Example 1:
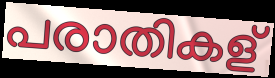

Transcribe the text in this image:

പരാതികള്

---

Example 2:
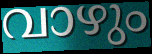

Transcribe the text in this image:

വാഴും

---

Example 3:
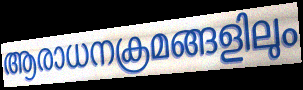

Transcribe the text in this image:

ആരാധനക്രമങ്ങളിലും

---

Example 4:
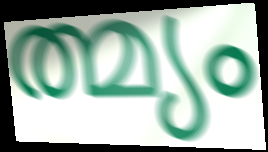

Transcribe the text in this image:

ത്മ്യം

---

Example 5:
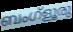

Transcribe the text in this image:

ബംഗ്ളൂരു